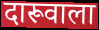
दारूवाला